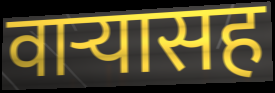
वार्‍यासह